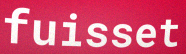
fuisset